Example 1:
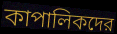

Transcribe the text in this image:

কাপালিকদের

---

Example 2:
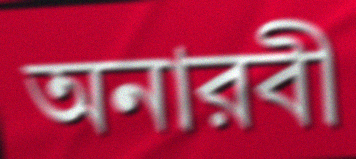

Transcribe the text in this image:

অনারবী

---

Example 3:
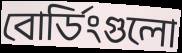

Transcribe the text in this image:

বোর্ডিংগুলো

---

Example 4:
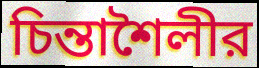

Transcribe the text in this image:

চিন্তাশৈলীর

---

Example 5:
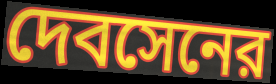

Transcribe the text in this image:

দেবসেনের